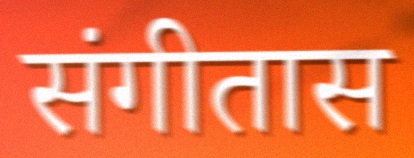
संगीतास